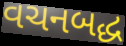
વચનબદ્ધ